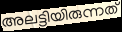
അലട്ടിയിരുന്നത്